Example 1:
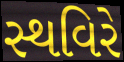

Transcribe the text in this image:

સ્થવિરે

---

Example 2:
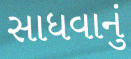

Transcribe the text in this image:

સાધવાનું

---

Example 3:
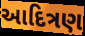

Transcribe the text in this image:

આદિત્રણ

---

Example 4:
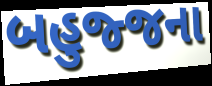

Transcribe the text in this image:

બહુજ્જના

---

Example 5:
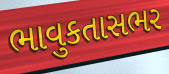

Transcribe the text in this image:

ભાવુકતાસભર